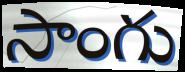
సాంగు